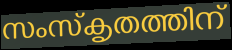
സംസ്‌കൃതത്തിന്